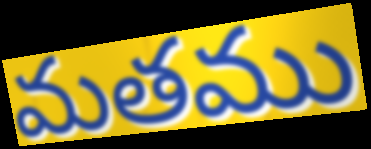
మతము